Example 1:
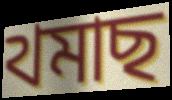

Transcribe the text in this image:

থমাছ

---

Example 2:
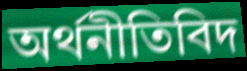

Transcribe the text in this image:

অৰ্থনীতিবিদ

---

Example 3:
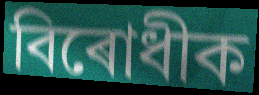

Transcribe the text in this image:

বিৰোধীক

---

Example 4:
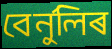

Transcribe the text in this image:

বেৰ্নুলিৰ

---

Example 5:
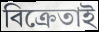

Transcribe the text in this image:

বিক্ৰেতাই